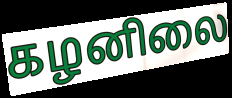
கழனிலை